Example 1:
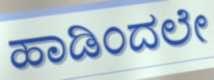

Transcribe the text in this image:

ಹಾಡಿಂದಲೇ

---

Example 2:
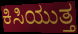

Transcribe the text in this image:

ಕಿಸಿಯುತ್ತ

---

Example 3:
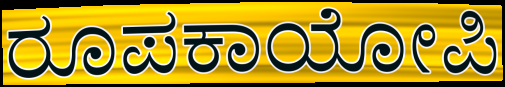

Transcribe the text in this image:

ರೂಪಕಾಯೋಪಿ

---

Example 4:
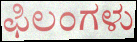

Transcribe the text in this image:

ಫಿಲಂಗಳು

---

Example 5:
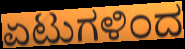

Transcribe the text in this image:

ಏಟುಗಳಿಂದ